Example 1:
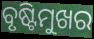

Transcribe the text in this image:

ବୃଷ୍ଟିମୁଖର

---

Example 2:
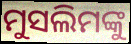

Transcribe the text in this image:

ମୁସଲିମଙ୍କୁ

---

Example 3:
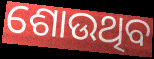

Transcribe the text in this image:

ଶୋଉଥିବ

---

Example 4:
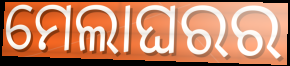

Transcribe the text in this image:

ମେଲାଘରର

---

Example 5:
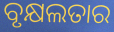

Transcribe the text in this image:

ବୃକ୍ଷଲତାର